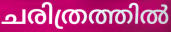
ചരിത്രത്തിൽ